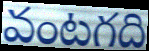
వంటగది